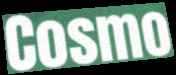
Cosmo